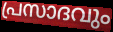
പ്രസാദവും